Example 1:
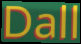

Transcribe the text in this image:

Dall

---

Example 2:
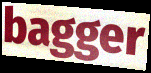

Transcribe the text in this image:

bagger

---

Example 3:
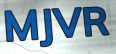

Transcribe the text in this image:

MJVR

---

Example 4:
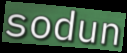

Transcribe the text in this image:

sodun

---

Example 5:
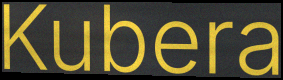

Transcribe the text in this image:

Kubera